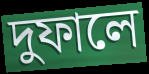
দুফালে